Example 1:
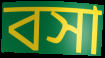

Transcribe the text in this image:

বসা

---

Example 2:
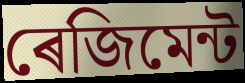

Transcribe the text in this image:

ৰেজিমেন্ট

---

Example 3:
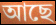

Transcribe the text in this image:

আছে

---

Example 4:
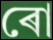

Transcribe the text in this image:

ৰো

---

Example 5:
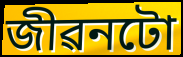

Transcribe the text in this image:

জীৱনটো